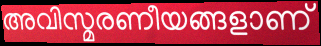
അവിസ്മരണീയങ്ങളാണ്